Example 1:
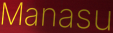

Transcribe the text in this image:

Manasu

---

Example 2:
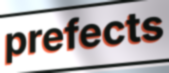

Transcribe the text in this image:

prefects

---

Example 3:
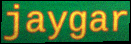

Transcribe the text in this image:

jaygar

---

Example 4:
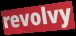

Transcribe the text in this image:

revolvy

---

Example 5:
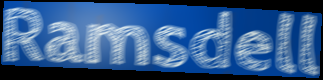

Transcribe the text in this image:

Ramsdell